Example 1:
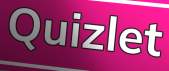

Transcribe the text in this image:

Quizlet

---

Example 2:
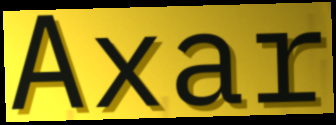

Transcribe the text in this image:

Axar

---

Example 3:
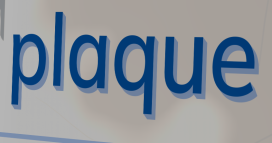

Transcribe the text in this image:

plaque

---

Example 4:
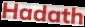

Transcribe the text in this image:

Hadath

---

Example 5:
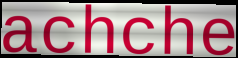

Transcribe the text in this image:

achche